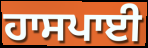
ਹਾਸਪਾਈ